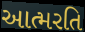
આત્મરતિ